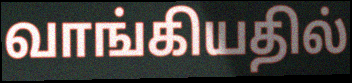
வாங்கியதில்